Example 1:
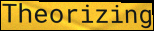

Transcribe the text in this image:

Theorizing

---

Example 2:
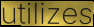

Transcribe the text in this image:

utilizes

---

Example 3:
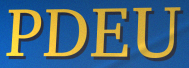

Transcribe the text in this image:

PDEU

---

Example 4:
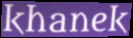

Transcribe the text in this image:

khanek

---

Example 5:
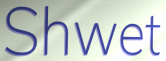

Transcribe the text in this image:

Shwet